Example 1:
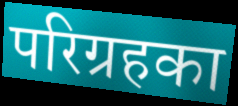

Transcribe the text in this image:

परिग्रहका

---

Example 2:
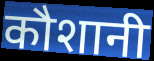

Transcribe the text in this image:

कौशानी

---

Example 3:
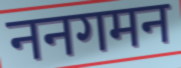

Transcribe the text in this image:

ननगमन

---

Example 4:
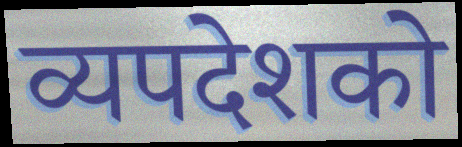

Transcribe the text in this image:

व्यपदेशको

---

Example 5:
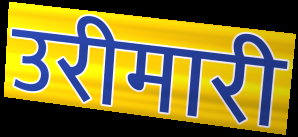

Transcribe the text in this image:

उरीमारी